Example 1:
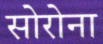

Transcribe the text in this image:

सोरोना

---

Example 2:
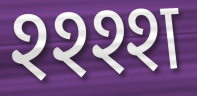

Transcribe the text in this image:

श्श्श्श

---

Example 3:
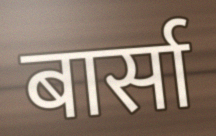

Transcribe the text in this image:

बार्सा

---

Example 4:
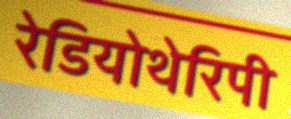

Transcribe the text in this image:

रेडियोथेरिपी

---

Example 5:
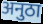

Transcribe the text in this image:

अनुठा